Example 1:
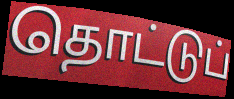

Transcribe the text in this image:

தொட்டுப்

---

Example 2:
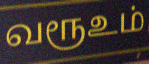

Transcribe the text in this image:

வரூஉம்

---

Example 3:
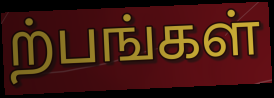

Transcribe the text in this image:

ற்பங்கள்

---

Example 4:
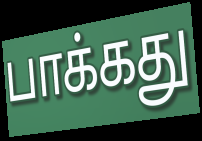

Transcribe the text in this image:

பாக்கது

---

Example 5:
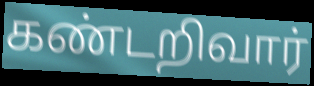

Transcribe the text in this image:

கண்டறிவார்